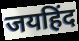
जयहिंद